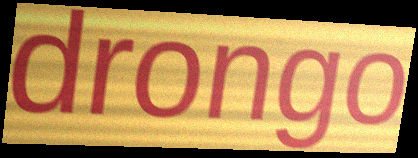
drongo